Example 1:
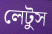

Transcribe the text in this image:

লেটুস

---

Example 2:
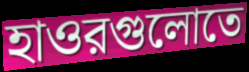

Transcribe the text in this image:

হাওরগুলোতে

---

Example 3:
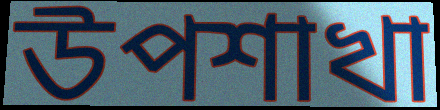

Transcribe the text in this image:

উপশাখা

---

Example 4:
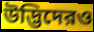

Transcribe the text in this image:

উদ্ভিদেরও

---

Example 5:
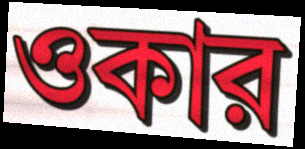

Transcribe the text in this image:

ওকার